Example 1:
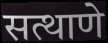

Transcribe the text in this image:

सत्थाणे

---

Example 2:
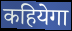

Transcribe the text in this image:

कहियेगा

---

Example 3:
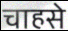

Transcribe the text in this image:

चाहसे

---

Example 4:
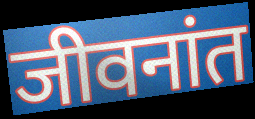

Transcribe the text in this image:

जीवनांत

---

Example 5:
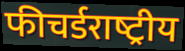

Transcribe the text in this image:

फीचर्डराष्ट्रीय